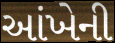
આંખેની